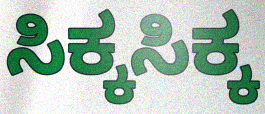
ಸಿಕ್ಕಸಿಕ್ಕ